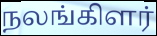
நலங்கிளர்